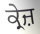
ਕ੍ਰੇਜ਼